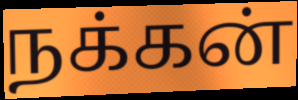
நக்கன்